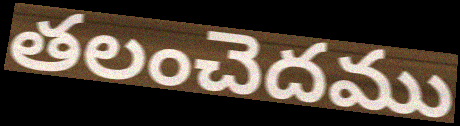
తలంచెదము